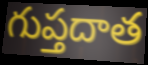
గుప్తదాత